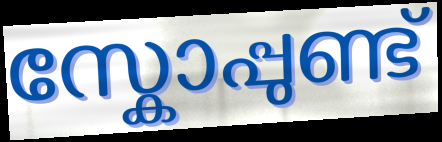
സ്കോപ്പുണ്ട്